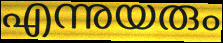
എന്നുയരും